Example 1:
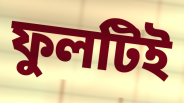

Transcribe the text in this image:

ফুলটিই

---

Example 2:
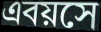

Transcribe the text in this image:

এবয়সে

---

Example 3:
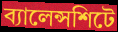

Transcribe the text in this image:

ব্যালেন্সশিটে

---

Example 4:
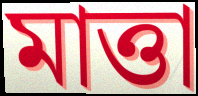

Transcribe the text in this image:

মাত্তা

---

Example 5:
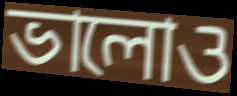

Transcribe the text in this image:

ভালোও